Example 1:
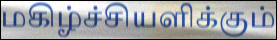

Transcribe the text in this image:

மகிழ்ச்சியளிக்கும்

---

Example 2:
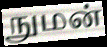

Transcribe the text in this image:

நுமன்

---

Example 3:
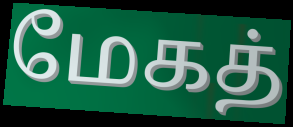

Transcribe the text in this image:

மேகத்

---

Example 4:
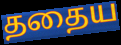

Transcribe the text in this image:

ததைய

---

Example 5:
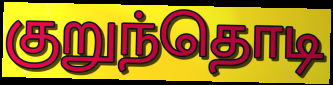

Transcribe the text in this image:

குறுந்தொடி